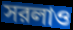
সরলাও